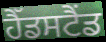
ਹੈੱਡਸਟੈਂਡ